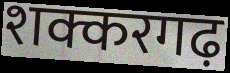
शक्करगढ़